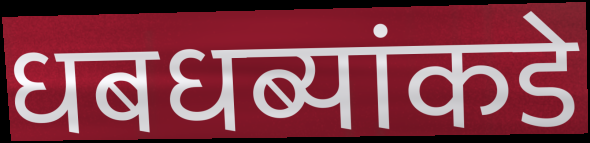
धबधब्यांकडे